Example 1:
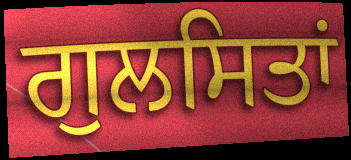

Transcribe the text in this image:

ਗੁਲਸਿਤਾਂ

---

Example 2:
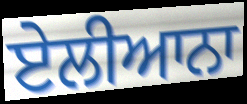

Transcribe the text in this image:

ਏਲੀਆਨਾ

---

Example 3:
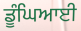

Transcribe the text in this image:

ਡੂੰਘਿਆਈ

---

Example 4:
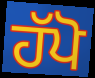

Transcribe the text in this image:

ਹੱਪੋ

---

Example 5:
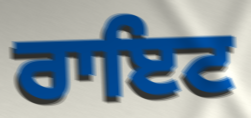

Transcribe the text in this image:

ਰਾਇਟ